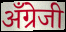
अँग्रेजी